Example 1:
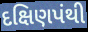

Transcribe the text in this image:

દક્ષિણપંથી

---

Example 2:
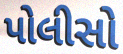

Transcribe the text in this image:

પોલીસો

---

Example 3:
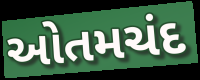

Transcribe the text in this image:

ઓતમચંદ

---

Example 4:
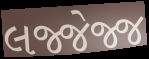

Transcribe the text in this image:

લજ્જેજ્જ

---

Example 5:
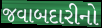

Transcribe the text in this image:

જવાબદારીનો